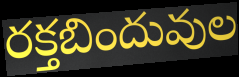
రక్తబిందువుల